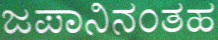
ಜಪಾನಿನಂತಹ